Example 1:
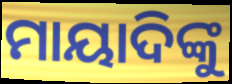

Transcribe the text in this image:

ମାୟାଦିଙ୍କୁ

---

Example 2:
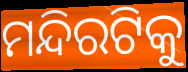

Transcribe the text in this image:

ମନ୍ଦିରଟିକୁ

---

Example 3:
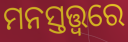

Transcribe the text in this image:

ମନସ୍ତତ୍ତ୍ଵରେ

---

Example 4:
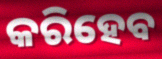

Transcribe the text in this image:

କରିହେବ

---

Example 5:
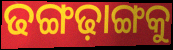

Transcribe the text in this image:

ଢଙ୍ଗଢ଼ାଙ୍ଗକୁ